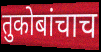
तुकोबांचाच